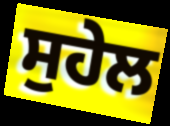
ਸੁਹੇਲ